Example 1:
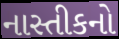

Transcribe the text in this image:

નાસ્તીકનો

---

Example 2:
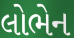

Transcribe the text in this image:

લોભેન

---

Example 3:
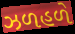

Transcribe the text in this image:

ઝળહળે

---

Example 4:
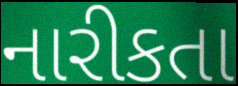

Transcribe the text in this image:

નારીકતા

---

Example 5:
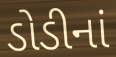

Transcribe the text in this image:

ડોડીનાં